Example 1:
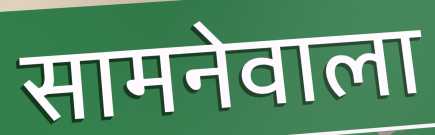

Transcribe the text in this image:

सामनेवाला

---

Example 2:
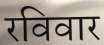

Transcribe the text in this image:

रविवार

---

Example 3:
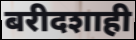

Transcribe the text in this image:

बरीदशाही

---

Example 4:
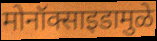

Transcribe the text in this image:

मोनॉक्साइडामुळे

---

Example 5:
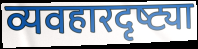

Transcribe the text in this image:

व्यवहारदृष्ट्या